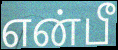
என்பீ